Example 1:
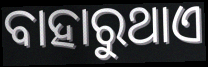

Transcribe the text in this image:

ବାହାରୁଥାଏ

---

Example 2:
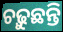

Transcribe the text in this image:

ଚଢ଼ୁଛନ୍ତି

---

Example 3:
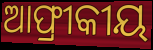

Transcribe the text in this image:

ଆଫ୍ରୀକୀୟ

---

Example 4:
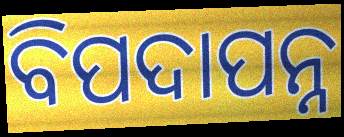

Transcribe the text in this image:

ବିପଦାପନ୍ନ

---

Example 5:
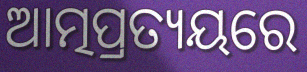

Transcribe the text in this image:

ଆତ୍ମପ୍ରତ୍ୟୟରେ